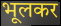
भूलकर